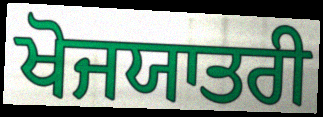
ਖੋਜਯਾਤਰੀ